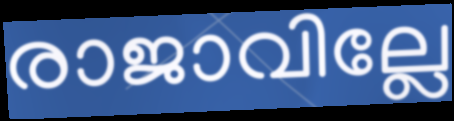
രാജാവില്ലേ